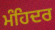
ਮੰਹਿਦਰ